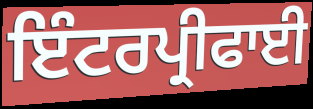
ਇੰਟਰਪ੍ਰੀਫਾਈ